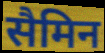
सैमिन